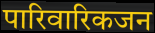
पारिवारिकजन